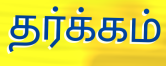
தர்க்கம்